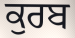
ਕੁਰਬ